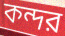
কন্দর